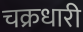
चक्रधारी